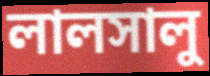
লালসালু